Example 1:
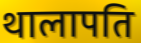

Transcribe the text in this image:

थालापति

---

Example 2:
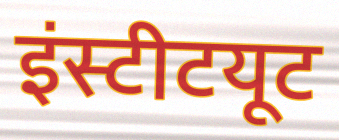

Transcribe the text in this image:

इंस्टीटयूट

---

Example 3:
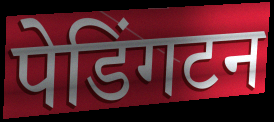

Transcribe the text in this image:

पेडिंगटन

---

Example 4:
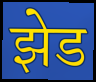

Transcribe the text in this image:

झेड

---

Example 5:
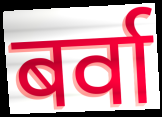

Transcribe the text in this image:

बर्वा